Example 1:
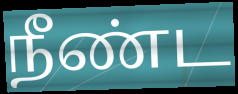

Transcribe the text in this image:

நீண்ட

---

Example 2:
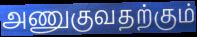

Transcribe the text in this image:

அணுகுவதற்கும்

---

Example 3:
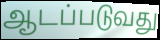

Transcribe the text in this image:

ஆடப்படுவது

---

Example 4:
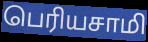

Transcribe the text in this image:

பெரியசாமி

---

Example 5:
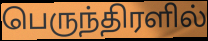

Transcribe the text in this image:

பெருந்திரளில்